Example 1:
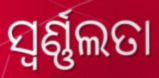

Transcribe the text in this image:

ସ୍ଵର୍ଣ୍ଣଲତା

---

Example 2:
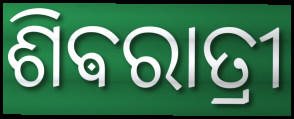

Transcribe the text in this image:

ଶିଵରାତ୍ରୀ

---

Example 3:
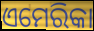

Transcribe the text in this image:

ଏମେରିକା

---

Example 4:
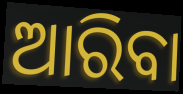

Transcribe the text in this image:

ଆରିବା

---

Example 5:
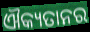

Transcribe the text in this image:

ଐକ୍ୟତାନର